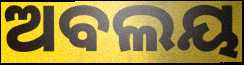
ଅବଲୟ